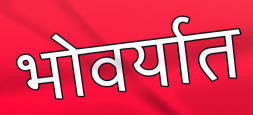
भोवर्यात